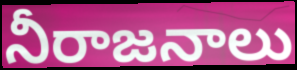
నీరాజనాలు